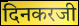
दिनकरजी